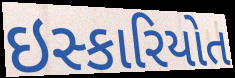
ઇસ્કારિયોત